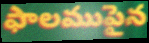
ఫాలముపైన